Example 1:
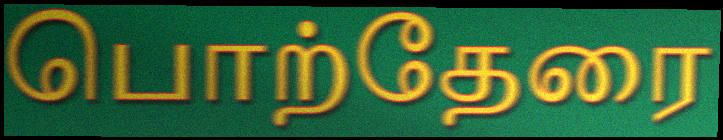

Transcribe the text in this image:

பொற்தேரை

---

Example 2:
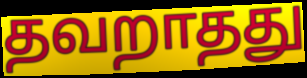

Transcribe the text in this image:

தவறாதது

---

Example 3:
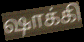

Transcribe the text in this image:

ஷாக்கி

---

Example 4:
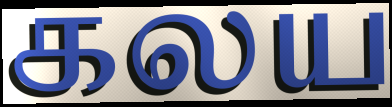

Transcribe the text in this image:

கலய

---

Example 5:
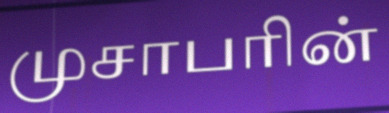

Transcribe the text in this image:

முசாபரின்